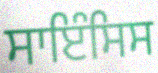
ਸਾਇੰਸਿਸ